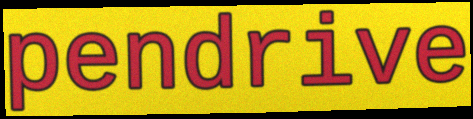
pendrive